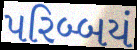
પરિબ્બયં